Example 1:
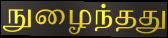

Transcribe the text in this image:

நுழைந்தது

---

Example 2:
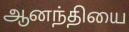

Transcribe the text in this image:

ஆனந்தியை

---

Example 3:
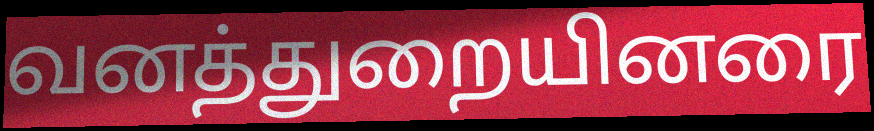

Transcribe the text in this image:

வனத்துறையினரை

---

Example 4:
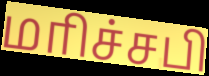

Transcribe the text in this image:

மரிச்சபி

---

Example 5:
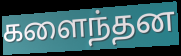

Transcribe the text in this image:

களைந்தன